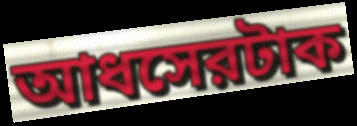
আধসেরটাক